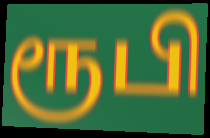
ரூபி